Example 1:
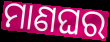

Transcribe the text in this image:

ମାଣଘର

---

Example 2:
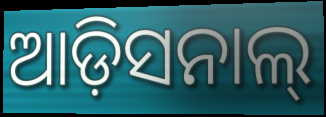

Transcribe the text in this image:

ଆଡ଼ିସନାଲ୍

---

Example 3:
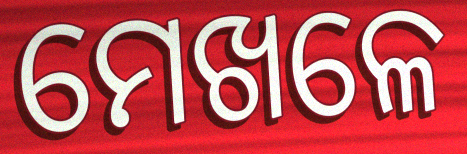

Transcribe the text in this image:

ମେଖଳେ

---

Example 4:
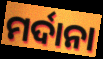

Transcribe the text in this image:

ମର୍ଦାନା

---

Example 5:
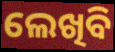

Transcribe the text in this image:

ଲେଖିବି